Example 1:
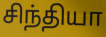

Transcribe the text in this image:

சிந்தியா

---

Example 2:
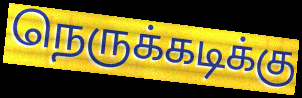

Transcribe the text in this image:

நெருக்கடிக்கு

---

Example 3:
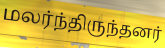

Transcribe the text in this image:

மலர்ந்திருந்தனர்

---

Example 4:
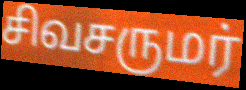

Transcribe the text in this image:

சிவசருமர்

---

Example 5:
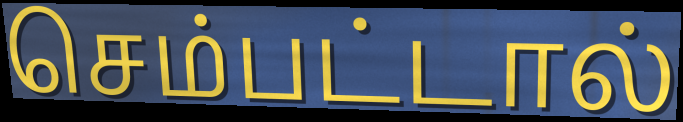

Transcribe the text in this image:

செம்பட்டால்